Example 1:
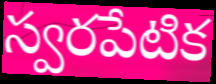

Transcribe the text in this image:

స్వరపేటిక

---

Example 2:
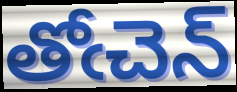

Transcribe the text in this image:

తోఁచెన్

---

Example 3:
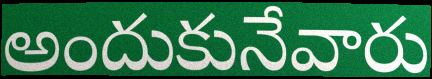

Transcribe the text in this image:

అందుకునేవారు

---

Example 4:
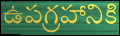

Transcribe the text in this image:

ఉపగ్రహానికి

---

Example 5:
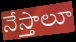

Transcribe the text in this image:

నేస్తాలూ